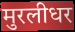
मुरलीधर